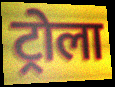
ट्रोला